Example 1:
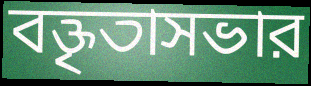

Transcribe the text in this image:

বক্তৃতাসভার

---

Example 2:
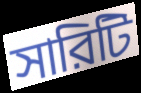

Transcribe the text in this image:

সারিটি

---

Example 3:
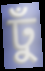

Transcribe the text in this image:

ঢুঁ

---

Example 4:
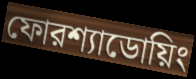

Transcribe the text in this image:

ফোরশ্যাডোয়িং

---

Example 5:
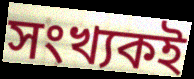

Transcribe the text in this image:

সংখ্যকই